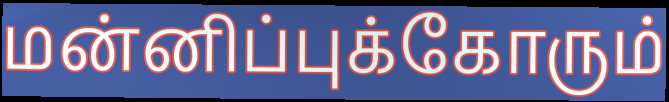
மன்னிப்புக்கோரும்